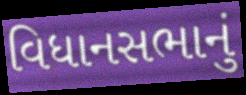
વિધાનસભાનું